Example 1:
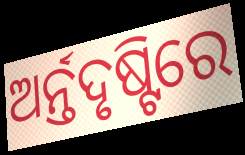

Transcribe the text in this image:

ଅର୍ନ୍ତଦୃଷ୍ଟିରେ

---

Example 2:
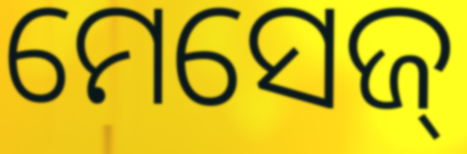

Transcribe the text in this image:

ମେସେଜ୍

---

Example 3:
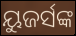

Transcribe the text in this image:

ୟୁଜର୍ସଙ୍କ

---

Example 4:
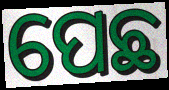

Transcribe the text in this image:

ପେଛ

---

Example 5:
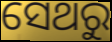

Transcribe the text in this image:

ସେଥରୁ